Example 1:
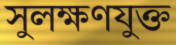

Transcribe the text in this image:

সুলক্ষণযুক্ত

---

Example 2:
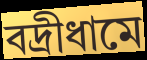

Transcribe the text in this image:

বদ্রীধামে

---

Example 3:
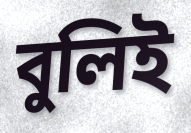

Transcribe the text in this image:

বুলিই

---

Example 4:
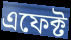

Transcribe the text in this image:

এফেক্ট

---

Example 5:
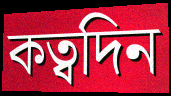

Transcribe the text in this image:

কত্বদিন